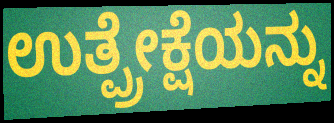
ಉತ್ಪ್ರೇಕ್ಷೆಯನ್ನು